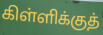
கிள்ளிக்குத்